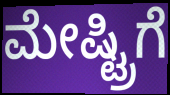
ಮೇಷ್ಟ್ರಿಗೆ